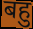
बहु